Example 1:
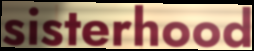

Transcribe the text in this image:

sisterhood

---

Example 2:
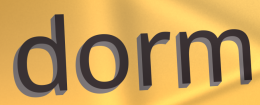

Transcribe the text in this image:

dorm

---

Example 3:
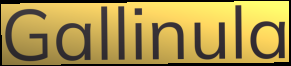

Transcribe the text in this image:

Gallinula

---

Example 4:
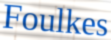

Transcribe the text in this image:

Foulkes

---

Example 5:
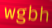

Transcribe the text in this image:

wgbh